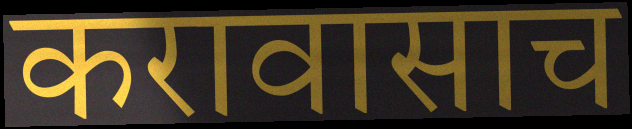
करावासाच